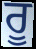
ਰੂ